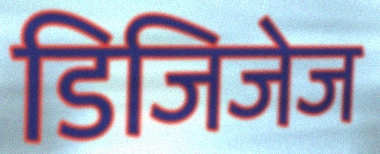
डिजिजेज